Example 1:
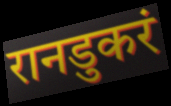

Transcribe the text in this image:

रानडुकरं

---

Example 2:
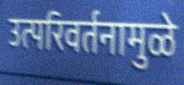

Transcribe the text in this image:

उत्परिवर्तनामुळे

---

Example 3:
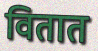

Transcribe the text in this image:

वितात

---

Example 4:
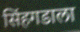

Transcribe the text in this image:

सिंहगडाला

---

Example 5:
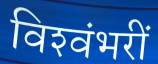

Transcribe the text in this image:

विश्वंभरीं